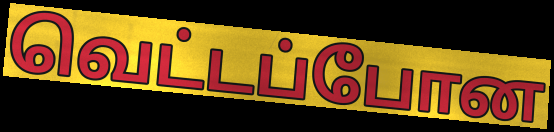
வெட்டப்போன